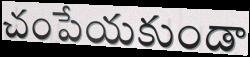
చంపేయకుండా